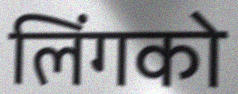
लिंगको